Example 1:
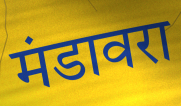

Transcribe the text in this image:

मंडावरा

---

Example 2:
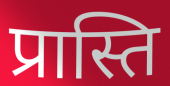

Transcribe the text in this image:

प्रास्ति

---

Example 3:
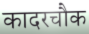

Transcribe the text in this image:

कादरचौक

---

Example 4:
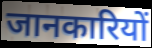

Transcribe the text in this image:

जानकारियों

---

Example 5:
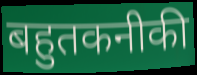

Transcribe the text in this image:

बहुतकनीकी